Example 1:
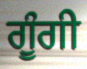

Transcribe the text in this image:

ਗੂੰਗੀ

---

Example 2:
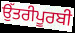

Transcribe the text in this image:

ਉੱਤਰੀਪੂਰਬੀ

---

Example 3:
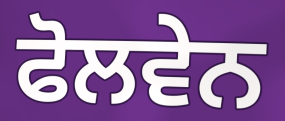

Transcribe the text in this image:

ਫੋਲਵੇਨ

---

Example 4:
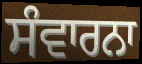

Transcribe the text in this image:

ਸੰਵਾਰਨਾ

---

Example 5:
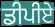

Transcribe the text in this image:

ਡੀਪੀਏ